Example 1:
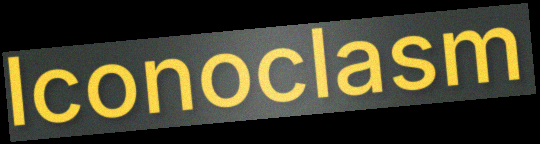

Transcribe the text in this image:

Iconoclasm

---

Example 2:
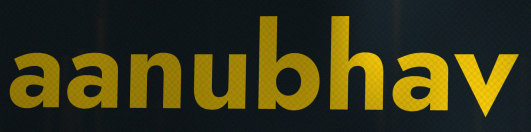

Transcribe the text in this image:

aanubhav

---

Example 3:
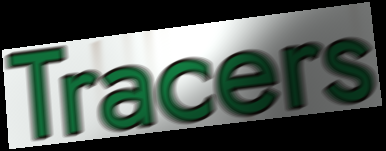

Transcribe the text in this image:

Tracers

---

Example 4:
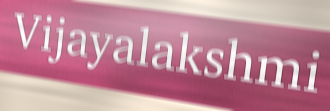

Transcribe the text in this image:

Vijayalakshmi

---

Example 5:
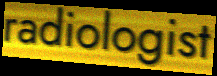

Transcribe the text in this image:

radiologist